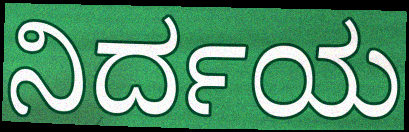
ನಿರ್ದಯ